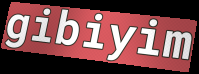
gibiyim